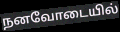
நனவோடையில்